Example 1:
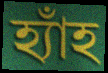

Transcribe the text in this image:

হ্যাঁহ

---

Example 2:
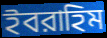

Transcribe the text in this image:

ইবরাহিম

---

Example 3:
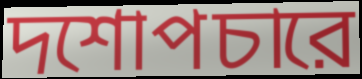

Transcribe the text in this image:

দশোপচারে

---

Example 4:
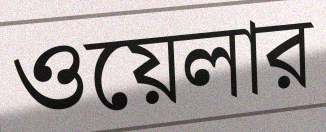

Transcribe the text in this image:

ওয়েলার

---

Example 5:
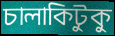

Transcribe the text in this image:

চালাকিটুকু